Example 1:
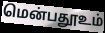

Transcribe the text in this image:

மென்பதூஉம்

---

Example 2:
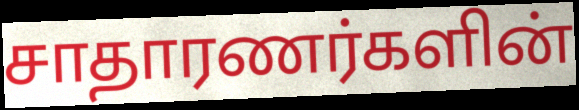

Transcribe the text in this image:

சாதாரணர்களின்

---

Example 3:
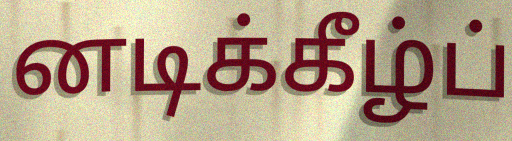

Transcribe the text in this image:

னடிக்கீழ்ப்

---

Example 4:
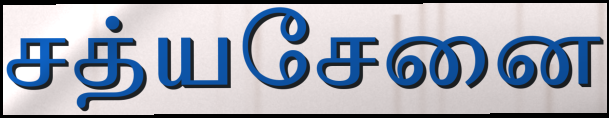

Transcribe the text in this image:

சத்யசேனை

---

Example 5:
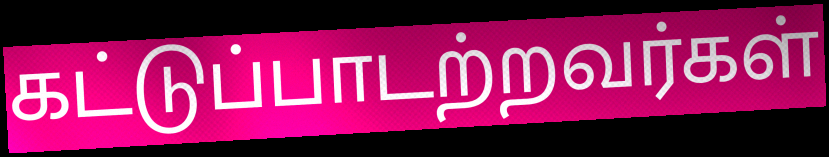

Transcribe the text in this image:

கட்டுப்பாடற்றவர்கள்